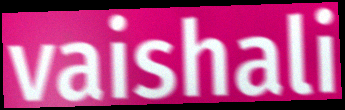
vaishali